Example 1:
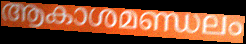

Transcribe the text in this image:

ആകാശമണ്ഡലം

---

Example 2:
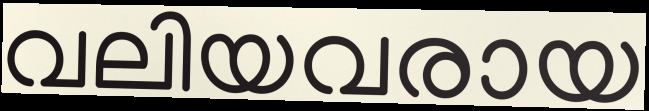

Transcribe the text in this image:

വലിയവരായ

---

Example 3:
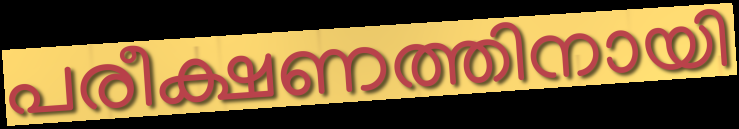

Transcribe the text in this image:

പരീക്ഷണത്തിനായി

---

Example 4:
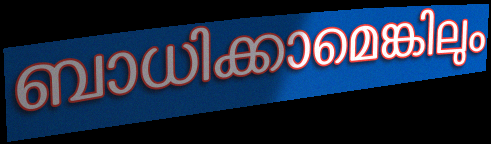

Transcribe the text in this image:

ബാധിക്കാമെങ്കിലും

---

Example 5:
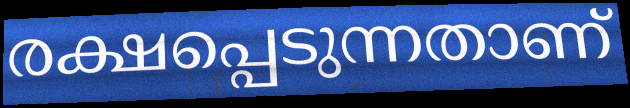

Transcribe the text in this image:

രക്ഷപ്പെടുന്നതാണ്